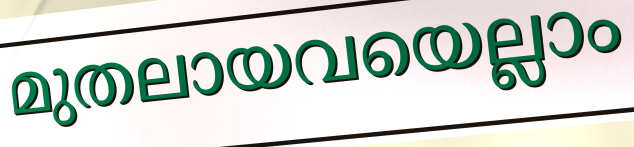
മുതലായവയെല്ലാം